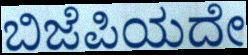
ಬಿಜೆಪಿಯದೇ